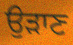
ਉਡ਼ਾਣ